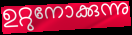
ഉറ്റുനോക്കുന്നു